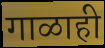
गाळाही